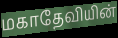
மகாதேவியின்